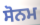
ਸੋਨਮ